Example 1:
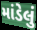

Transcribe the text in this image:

માંડેલું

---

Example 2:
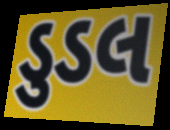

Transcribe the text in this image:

ડુડલ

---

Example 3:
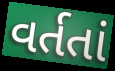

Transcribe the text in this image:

વર્તતાં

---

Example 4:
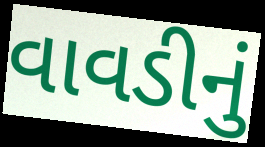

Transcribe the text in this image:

વાવડીનું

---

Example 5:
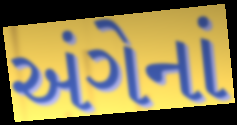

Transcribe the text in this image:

અંગેનાં